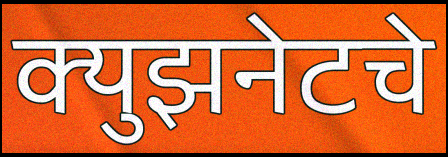
क्युझनेटचे